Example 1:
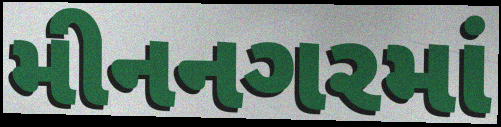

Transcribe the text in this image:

મીનનગરમાં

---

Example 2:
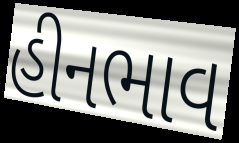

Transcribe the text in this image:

હીનભાવ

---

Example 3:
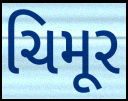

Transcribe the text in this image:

ચિમૂર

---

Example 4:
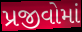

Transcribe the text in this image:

પ્રજીવોમાં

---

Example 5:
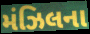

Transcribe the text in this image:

મંઝિલના